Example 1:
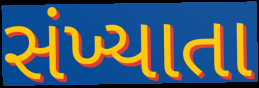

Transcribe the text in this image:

સંખ્યાતા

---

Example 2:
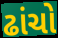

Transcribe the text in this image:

ઢાંચો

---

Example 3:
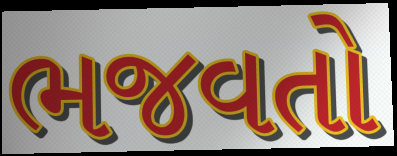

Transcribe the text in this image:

ભજવતો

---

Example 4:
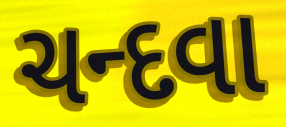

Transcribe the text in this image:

ચન્દવા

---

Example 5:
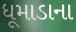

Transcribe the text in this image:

ધૂમાડાના